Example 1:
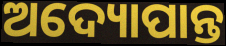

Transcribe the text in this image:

ଅଦ୍ୟୋପାନ୍ତ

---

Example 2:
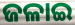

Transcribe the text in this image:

ଜଳାଇ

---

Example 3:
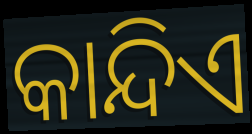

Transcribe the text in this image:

କାନ୍ଦିଏ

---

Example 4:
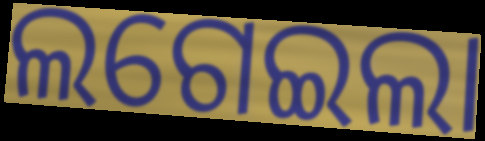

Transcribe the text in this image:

ଲଗେଇଲା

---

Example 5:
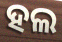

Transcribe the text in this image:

ହଲ